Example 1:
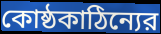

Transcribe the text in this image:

কোষ্ঠকাঠিন্যের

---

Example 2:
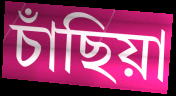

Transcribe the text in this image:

চাঁছিয়া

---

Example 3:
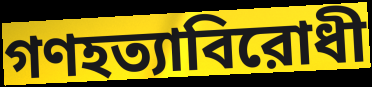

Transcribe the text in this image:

গণহত্যাবিরোধী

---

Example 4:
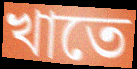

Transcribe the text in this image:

খাতে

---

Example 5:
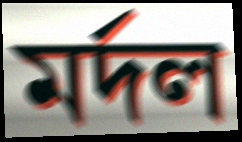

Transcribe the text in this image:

মর্দল